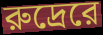
রুদ্রেরে